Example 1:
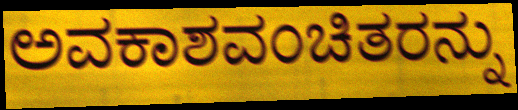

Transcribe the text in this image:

ಅವಕಾಶವಂಚಿತರನ್ನು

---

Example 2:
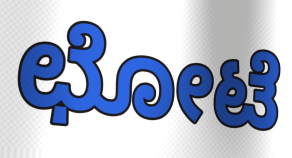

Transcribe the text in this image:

ಛೋಟೆ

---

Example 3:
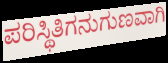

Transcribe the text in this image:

ಪರಿಸ್ಥಿತಿಗನುಗುಣವಾಗಿ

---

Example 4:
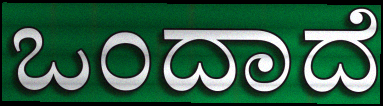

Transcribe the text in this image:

ಒಂದಾದೆ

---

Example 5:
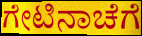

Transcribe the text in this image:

ಗೇಟಿನಾಚೆಗೆ